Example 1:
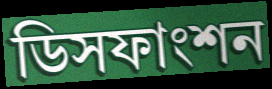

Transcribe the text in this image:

ডিসফাংশন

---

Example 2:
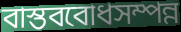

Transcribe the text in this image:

বাস্তববোধসম্পন্ন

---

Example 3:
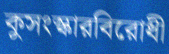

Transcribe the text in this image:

কুসংস্কারবিরোধী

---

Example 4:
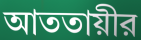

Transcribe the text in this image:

আততায়ীর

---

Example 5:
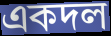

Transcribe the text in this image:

একদল